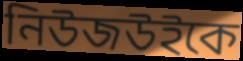
নিউজউইকে